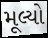
મૂલ્યો